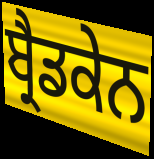
ਬ੍ਰੈਡਕੇਨ